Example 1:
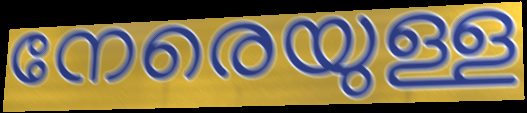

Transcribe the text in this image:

നേരെയുള്ള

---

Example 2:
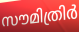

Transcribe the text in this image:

സൗമിത്രിർ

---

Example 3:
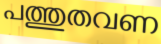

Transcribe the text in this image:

പത്തുതവണ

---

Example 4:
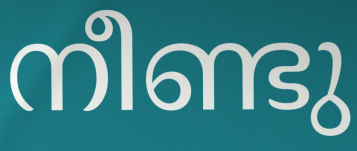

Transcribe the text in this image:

നീണ്ടു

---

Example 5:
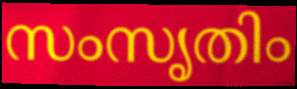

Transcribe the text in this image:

സംസൃതിം